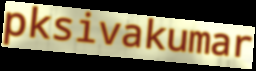
pksivakumar